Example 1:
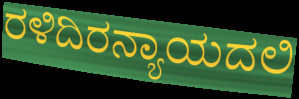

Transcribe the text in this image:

ರಳಿದಿರನ್ಯಾಯದಲಿ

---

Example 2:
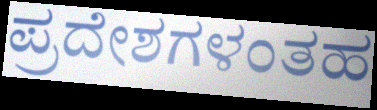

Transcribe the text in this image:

ಪ್ರದೇಶಗಳಂತಹ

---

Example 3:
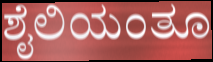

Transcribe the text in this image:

ಶೈಲಿಯಂತೂ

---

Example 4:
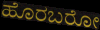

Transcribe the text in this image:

ಹೊರಬರೋ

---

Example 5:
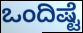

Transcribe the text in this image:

ಒಂದಿಷ್ಟೆ